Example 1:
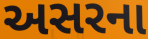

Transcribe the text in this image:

અસરના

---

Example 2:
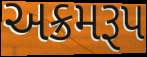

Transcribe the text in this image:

અક્રમરૂપ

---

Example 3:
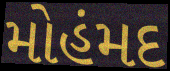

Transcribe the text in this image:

મોહંમદ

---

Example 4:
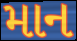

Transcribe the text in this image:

માન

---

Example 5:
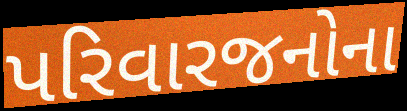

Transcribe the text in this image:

પરિવારજનોના